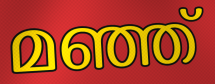
മഞ്ഞ്